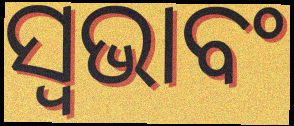
ସ୍ଵଭାବଂ